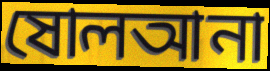
ষোলআনা